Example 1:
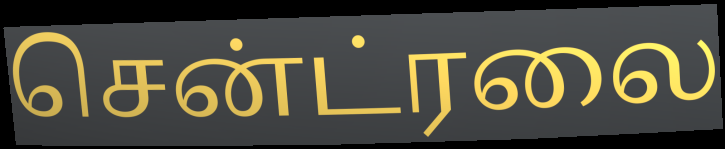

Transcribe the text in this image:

சென்ட்ரலை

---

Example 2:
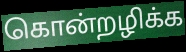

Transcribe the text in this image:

கொன்றழிக்க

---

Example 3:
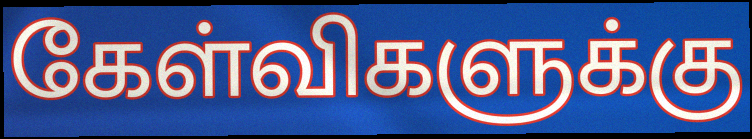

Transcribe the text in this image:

கேள்விகளுக்கு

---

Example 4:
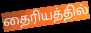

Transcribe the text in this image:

தைரியத்தில்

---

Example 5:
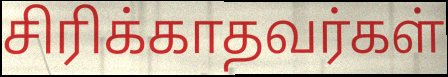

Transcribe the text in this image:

சிரிக்காதவர்கள்